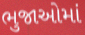
ભુજાઓમાં